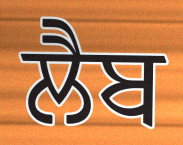
ਲੈਬ